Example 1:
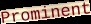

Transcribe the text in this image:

Prominent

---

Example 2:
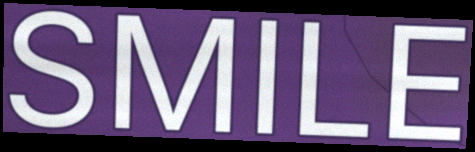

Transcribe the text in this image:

SMILE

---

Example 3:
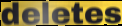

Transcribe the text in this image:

deletes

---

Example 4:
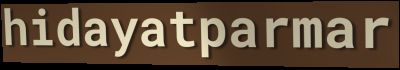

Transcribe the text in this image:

hidayatparmar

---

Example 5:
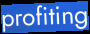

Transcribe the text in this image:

profiting